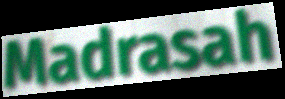
Madrasah